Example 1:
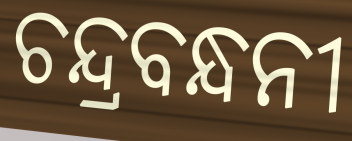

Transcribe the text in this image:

ଚନ୍ଦ୍ରବନ୍ଧନୀ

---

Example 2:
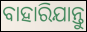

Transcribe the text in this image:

ବାହାରିଯାନ୍ତୁ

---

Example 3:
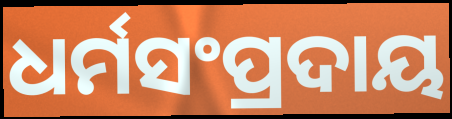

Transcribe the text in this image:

ଧର୍ମସଂପ୍ରଦାୟ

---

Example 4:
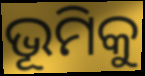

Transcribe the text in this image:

ଭୂମିକୁ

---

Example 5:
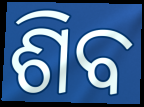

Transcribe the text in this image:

ଶିବ